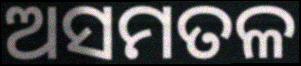
ଅସମତଳ